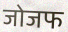
जोजफ